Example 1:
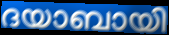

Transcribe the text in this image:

ദയാബായി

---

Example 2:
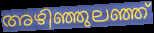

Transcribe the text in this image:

അഴിഞ്ഞുലഞ്ഞ്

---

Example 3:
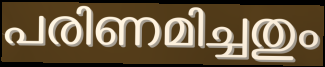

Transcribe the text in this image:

പരിണമിച്ചതും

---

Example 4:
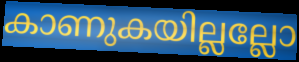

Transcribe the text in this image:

കാണുകയില്ലല്ലോ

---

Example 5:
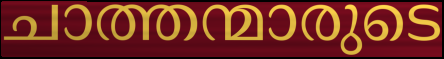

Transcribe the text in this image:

ചാത്തന്മാരുടെ